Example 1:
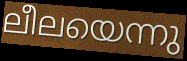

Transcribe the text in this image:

ലീലയെന്നു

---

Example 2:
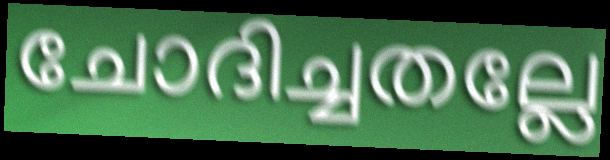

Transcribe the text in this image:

ചോദിച്ചതല്ലേ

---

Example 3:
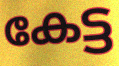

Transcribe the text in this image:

കേട്ട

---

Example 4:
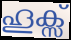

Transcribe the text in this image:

ഹൂക്സ്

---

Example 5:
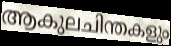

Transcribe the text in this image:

ആകുലചിന്തകളും